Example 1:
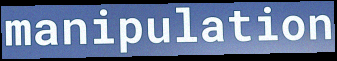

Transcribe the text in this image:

manipulation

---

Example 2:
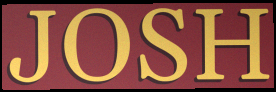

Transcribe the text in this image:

JOSH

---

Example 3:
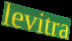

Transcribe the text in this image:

levitra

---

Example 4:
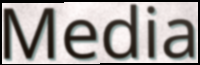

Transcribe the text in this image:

Media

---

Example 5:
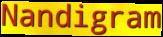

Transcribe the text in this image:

Nandigram